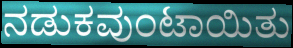
ನಡುಕವುಂಟಾಯಿತು